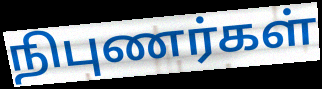
நிபுணர்கள்